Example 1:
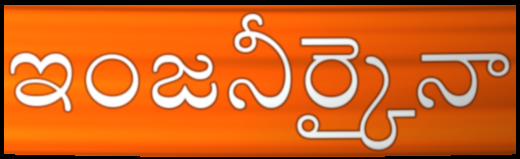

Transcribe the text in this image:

ఇంజనీర్కైనా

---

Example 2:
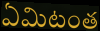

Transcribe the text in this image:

ఏమిటంత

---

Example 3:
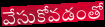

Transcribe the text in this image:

వేసుకోవడంతో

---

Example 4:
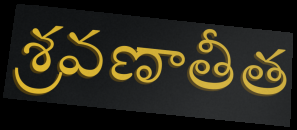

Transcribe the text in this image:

శ్రవణాతీత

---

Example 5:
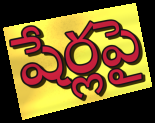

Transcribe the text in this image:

షేర్లపై